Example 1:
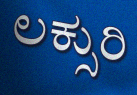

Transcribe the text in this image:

ಲಕ್ಸುರಿ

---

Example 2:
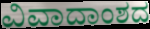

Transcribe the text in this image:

ವಿವಾದಾಂಶದ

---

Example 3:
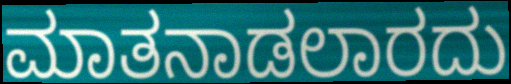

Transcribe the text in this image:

ಮಾತನಾಡಲಾರದು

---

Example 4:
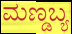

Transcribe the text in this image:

ಮಣ್ಡಬ್ಯ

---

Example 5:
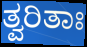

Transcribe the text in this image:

ತ್ವರಿತಾಃ